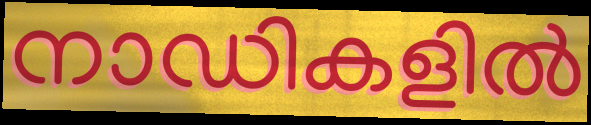
നാഡികളിൽ